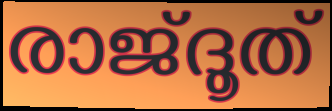
രാജ്ദൂത്